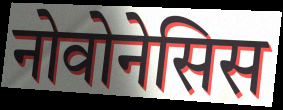
नोवोनेसिस